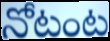
నోటంట